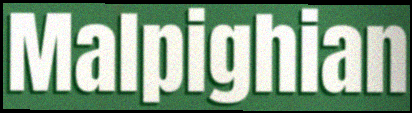
Malpighian